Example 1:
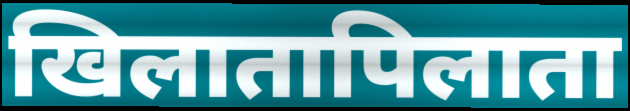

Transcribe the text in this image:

खिलातापिलाता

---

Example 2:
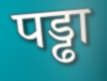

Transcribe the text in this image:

पड्ढा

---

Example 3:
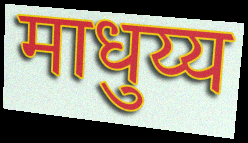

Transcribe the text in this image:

माधुय्य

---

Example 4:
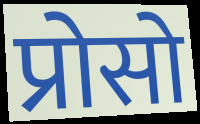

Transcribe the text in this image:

प्रोसो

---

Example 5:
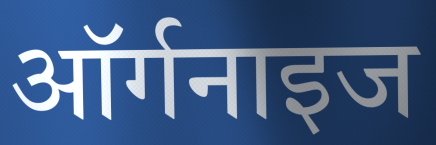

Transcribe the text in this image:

ऑर्गनाइज